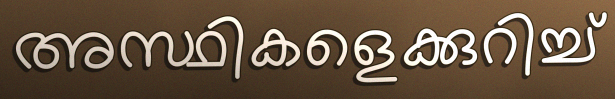
അസ്ഥികളെക്കുറിച്ച്